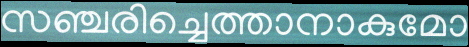
സഞ്ചരിച്ചെത്താനാകുമോ